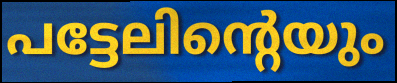
പട്ടേലിന്റെയും